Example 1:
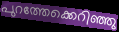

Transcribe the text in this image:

പുറത്തേക്കെറിഞ്ഞു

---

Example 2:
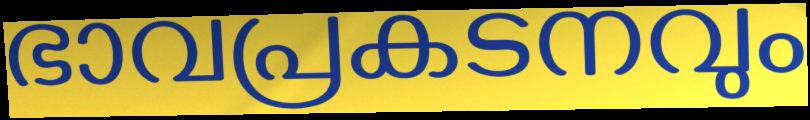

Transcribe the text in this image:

ഭാവപ്രകടനവും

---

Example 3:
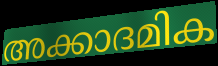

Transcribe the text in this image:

അക്കാദമിക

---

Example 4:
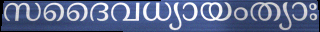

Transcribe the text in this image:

സദൈവധ്യായംത്യാഃ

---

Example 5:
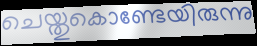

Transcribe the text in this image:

ചെയ്തുകൊണ്ടേയിരുന്നു